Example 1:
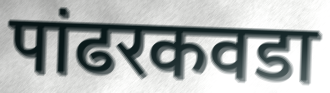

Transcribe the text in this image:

पांढरकवडा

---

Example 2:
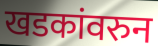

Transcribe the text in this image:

खडकांवरुन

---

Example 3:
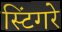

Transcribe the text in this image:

स्टिंगरे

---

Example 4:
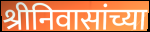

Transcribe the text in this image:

श्रीनिवासांच्या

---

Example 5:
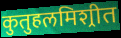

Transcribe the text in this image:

कुतुहलमिश्रीत